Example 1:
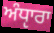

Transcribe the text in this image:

ਅੰਧੵਾਰਾ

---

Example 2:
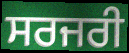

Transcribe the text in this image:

ਸਰਜਰੀ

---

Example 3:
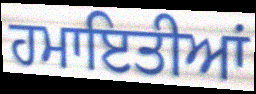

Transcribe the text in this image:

ਹਮਾਇਤੀਆਂ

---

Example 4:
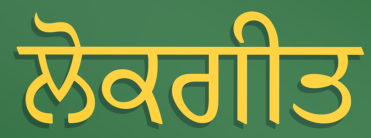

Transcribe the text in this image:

ਲੋਕਗੀਤ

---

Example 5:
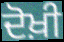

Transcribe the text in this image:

ਦੋਖ਼ੀ